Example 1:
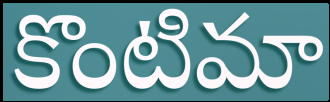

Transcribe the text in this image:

కొంటిమా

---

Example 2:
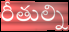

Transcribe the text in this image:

రీతుల్ని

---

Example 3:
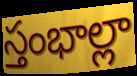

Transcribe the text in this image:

స్తంభాల్లా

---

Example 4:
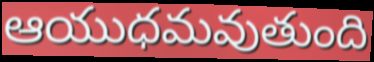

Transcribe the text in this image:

ఆయుధమవుతుంది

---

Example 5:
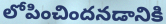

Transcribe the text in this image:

లోపించిందనడానికి